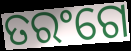
ତରଂଗେ